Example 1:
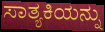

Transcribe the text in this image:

ಸಾತ್ಯಕಿಯನ್ನು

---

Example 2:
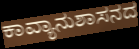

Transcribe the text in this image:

ಕಾವ್ಯಾನುಶಾಸನದ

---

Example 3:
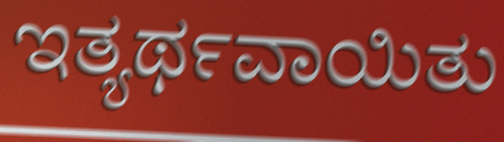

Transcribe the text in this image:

ಇತ್ಯರ್ಥವಾಯಿತು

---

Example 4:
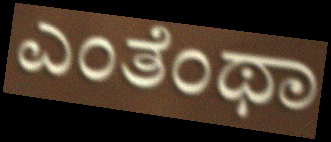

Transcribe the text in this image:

ಎಂತೆಂಥಾ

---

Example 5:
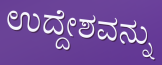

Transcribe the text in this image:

ಉದ್ದೇಶವನ್ನು